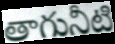
తాగునీటి